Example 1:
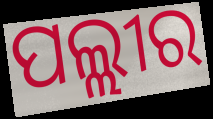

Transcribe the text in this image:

ପଲ୍ଲୀର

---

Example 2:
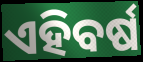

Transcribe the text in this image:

ଏହିବର୍ଷ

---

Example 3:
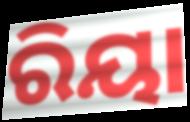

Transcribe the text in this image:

ରିୟା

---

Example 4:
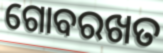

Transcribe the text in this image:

ଗୋବରଖତ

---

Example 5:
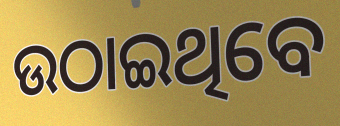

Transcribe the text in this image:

ଉଠାଇଥିବେ